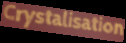
Crystalisation